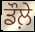
ਡੌਲ਼ੇ